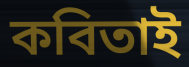
কবিতাই